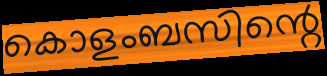
കൊളംബസിന്റെ